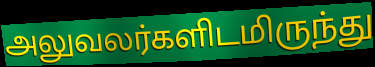
அலுவலர்களிடமிருந்து